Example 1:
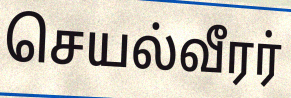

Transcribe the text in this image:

செயல்வீரர்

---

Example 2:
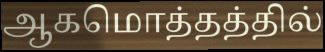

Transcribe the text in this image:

ஆகமொத்தத்தில்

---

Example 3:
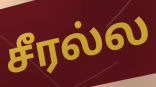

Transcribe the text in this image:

சீரல்ல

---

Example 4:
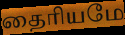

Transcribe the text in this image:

தைரியமே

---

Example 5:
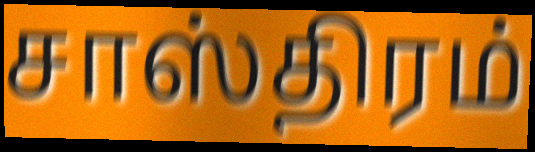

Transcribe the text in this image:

சாஸ்திரம்